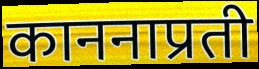
काननाप्रती